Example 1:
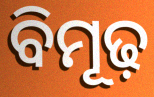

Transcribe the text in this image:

ବିମୂଢ଼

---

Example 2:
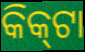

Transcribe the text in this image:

କିକ୍‍ଟା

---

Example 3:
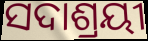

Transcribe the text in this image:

ସଦାଶ୍ରୟୀ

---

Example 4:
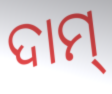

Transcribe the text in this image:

ଦାମ୍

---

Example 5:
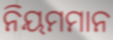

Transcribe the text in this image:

ନିୟମମାନ